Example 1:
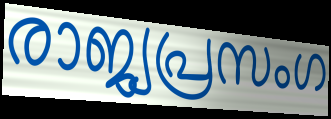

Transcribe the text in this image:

രാജ്യപ്രസംഗ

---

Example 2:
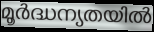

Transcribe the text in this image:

മൂർദ്ധന്യതയിൽ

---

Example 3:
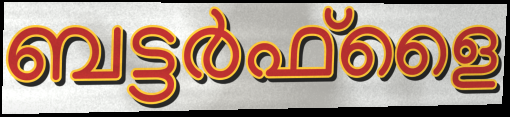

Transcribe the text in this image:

ബട്ടർഫ്ളൈ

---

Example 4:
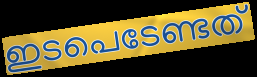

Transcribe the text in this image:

ഇടപെടേണ്ടത്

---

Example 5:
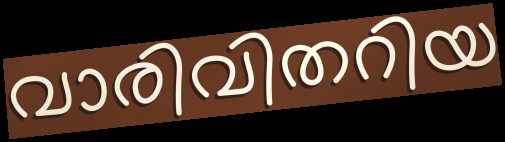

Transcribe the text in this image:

വാരിവിതറിയ